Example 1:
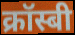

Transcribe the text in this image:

क्रॉस्बी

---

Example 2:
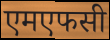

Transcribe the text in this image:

एमएफसी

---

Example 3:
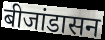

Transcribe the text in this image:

बीजांडासन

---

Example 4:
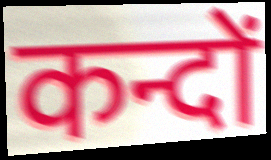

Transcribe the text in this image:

कन्दों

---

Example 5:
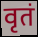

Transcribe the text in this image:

वृतं